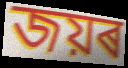
জয়ৰ